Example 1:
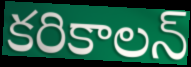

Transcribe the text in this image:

కరికాలన్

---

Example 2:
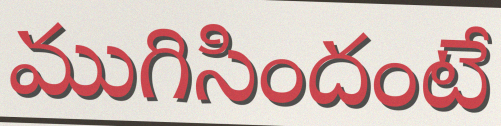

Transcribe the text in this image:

ముగిసిందంటే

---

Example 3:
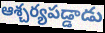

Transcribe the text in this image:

ఆశ్చర్యపడ్డాడు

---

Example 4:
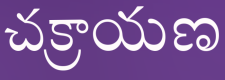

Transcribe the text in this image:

చక్రాయణ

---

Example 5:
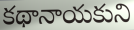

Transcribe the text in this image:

కథానాయకుని